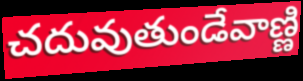
చదువుతుండేవాణ్ణి